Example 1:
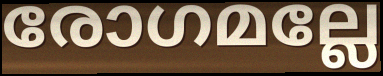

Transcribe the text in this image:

രോഗമല്ലേ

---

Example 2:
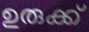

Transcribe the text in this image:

ഉരുക്ക്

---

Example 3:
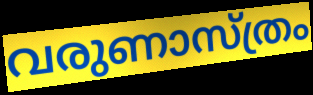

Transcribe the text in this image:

വരുണാസ്ത്രം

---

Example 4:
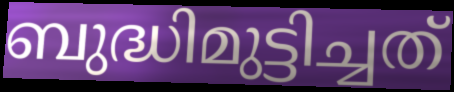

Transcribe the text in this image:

ബുദ്ധിമുട്ടിച്ചത്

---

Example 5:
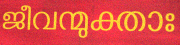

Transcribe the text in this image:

ജീവന്മുക്താഃ